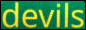
devils